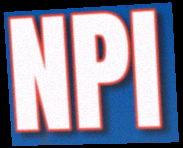
NPI